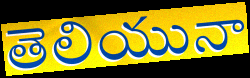
తెలియునా